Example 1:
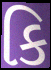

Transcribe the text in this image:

કિ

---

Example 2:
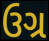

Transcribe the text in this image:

ઉગ્ર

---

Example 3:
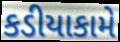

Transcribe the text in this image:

કડીયાકામે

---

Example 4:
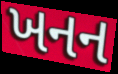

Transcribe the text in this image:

ખનન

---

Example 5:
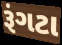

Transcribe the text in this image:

રૂંગટા